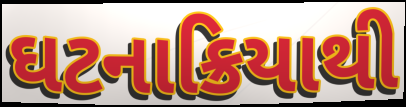
ઘટનાક્રિયાથી